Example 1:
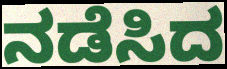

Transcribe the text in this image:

ನಡೆಸಿದ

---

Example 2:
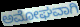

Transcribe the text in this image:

ಅಮೋಘವಾಗಿ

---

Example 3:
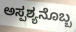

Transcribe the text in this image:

ಅಸ್ಪಶ್ಯನೊಬ್ಬ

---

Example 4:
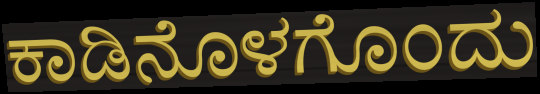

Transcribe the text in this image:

ಕಾಡಿನೊಳಗೊಂದು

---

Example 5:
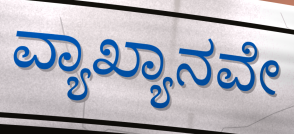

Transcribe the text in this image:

ವ್ಯಾಖ್ಯಾನವೇ